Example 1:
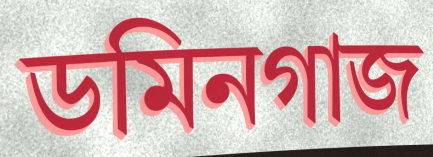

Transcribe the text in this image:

ডমিনগাজ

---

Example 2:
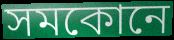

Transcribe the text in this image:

সমকোনে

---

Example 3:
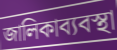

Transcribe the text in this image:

জালিকাব্যবস্থা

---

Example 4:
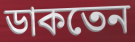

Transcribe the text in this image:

ডাকতেন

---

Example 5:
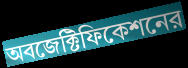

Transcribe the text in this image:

অবজেক্টিফিকেশনের